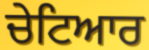
ਚੇਟਿਆਰ